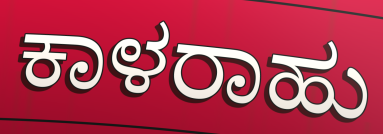
ಕಾಳರಾಹು